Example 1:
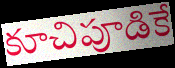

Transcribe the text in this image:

కూచిపూడికే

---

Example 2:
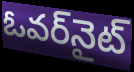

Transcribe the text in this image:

ఓవర్‌నైట్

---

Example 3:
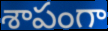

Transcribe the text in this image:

శాపంగా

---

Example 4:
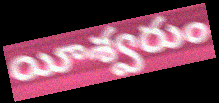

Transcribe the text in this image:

యీశ్వరుం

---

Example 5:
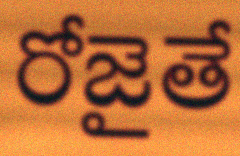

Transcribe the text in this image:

రోజైతే